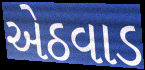
એઠવાડ